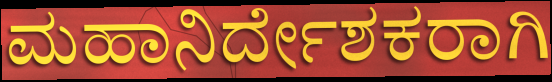
ಮಹಾನಿರ್ದೇಶಕರಾಗಿ